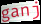
ganj